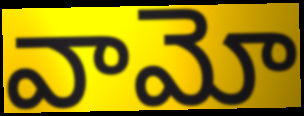
వామో